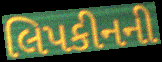
લિપકીનની